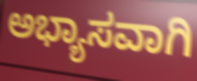
ಅಭ್ಯಾಸವಾಗಿ